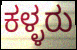
ಕಳ್ಳರು